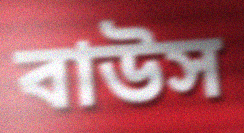
বাউস